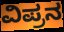
ವಿಪ್ರನ